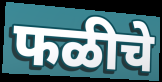
फळीचे